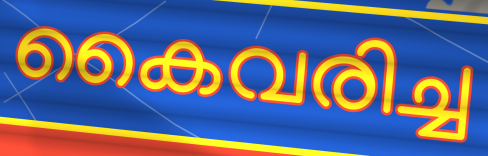
കൈവരിച്ച